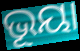
ଭୂୟା